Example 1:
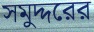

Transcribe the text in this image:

সমুদ্দরের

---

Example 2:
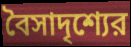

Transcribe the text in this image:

বৈসাদৃশ্যের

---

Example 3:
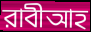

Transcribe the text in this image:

রাবীআহ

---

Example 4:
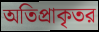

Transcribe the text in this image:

অতিপ্রাকৃতর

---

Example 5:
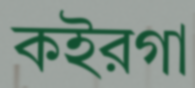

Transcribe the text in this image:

কইরগা